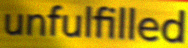
unfulfilled